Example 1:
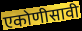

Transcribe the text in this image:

एकोणीसावी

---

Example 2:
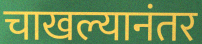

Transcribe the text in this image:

चाखल्यानंतर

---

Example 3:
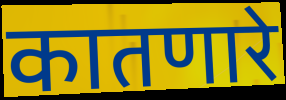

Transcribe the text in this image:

कातणारे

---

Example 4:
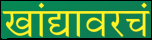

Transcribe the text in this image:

खांद्यावरचं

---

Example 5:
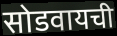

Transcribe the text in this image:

सोडवायची